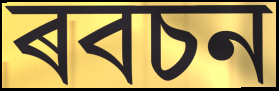
ৰবচন